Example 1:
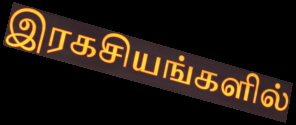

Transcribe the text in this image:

இரகசியங்களில்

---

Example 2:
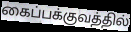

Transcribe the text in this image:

கைப்பக்குவத்தில்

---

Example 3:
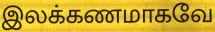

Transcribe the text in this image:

இலக்கணமாகவே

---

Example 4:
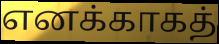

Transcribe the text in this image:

எனக்காகத்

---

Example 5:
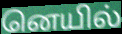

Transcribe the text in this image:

னெயில்